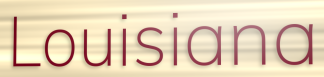
Louisiana